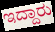
ಇದ್ದಾರು